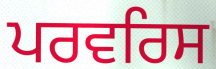
ਪਰਵਰਿਸ